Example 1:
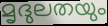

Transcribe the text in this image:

മൃദുലതയും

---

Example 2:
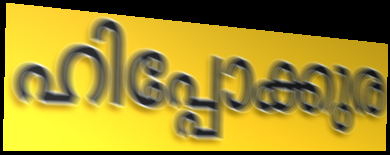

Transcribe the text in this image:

ഹിപ്പോക്കുര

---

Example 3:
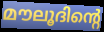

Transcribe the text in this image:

മൗലൂദിന്റെ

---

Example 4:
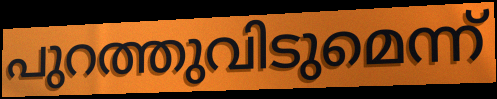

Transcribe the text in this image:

പുറത്തുവിടുമെന്ന്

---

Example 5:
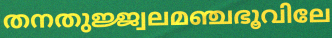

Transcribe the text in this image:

തനതുജ്ജ്വലമഞ്ചഭൂവിലേ